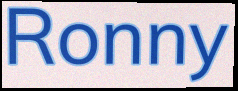
Ronny